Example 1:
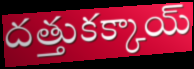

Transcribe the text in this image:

దత్తుకక్కాయ్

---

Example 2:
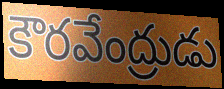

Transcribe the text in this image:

కౌరవేంద్రుడు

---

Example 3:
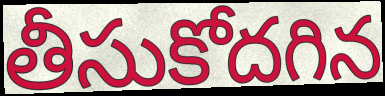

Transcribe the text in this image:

తీసుకోదగిన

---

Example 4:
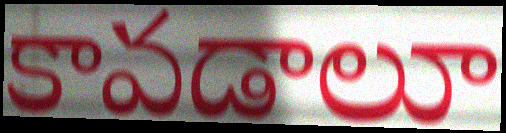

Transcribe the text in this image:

కావడాలూ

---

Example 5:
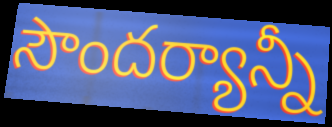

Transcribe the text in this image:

సౌందర్యాన్నీ